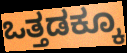
ಒತ್ತಡಕ್ಕೂ